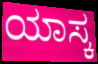
ಯಾಸ್ಕ